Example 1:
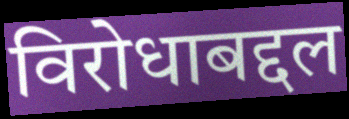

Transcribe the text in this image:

विरोधाबद्दल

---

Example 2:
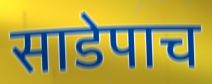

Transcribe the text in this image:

साडेपाच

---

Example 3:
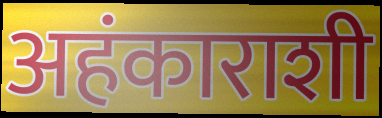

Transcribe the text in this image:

अहंकाराशी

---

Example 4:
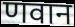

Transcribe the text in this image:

णवान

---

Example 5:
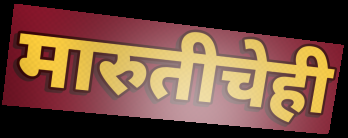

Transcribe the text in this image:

मारुतीचेही